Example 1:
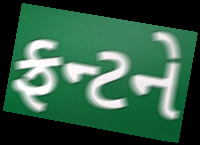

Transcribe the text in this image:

ફ્રન્ટને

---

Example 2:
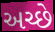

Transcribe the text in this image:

અચ્છે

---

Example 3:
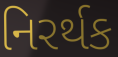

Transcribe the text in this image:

નિરર્થક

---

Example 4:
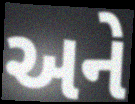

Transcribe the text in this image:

અને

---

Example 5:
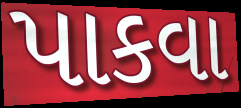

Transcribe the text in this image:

પાકવા